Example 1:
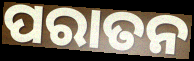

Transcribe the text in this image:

ପରାତନ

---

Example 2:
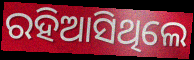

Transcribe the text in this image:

ରହିଆସିଥିଲେ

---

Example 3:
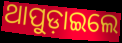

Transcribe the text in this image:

ଥାପୁଡ଼ାଇଲେ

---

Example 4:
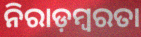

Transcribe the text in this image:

ନିରାଡ଼ମ୍ବରତା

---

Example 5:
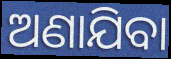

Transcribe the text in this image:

ଅଣାଯିବା